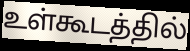
உள்கூடத்தில்